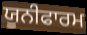
ਯੂਨੀਫਾਰਮ